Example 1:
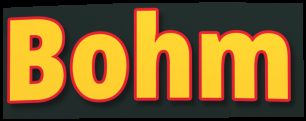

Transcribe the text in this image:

Bohm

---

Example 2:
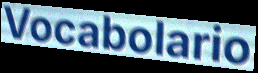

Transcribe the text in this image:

Vocabolario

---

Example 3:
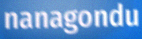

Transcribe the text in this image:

nanagondu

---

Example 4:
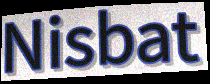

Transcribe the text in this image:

Nisbat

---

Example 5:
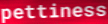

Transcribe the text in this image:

pettiness